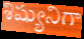
శిష్యునిగా